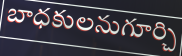
బాధకులనుగూర్చి